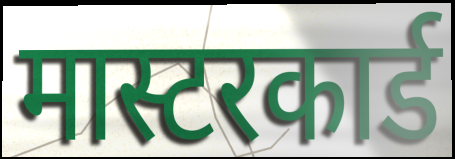
मास्टरकार्ड